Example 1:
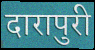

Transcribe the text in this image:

दारापुरी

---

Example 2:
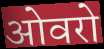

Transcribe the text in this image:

ओवरो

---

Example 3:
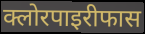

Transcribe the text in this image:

क्लोरपाइरीफास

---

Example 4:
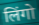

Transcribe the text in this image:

लिंगो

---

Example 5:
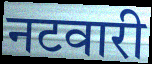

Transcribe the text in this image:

नटवारी